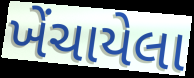
ખેંચાયેલા